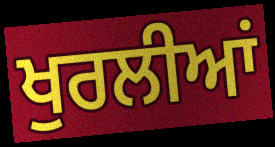
ਖੁਰਲੀਆਂ